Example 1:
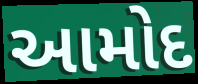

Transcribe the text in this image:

આમોદ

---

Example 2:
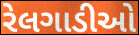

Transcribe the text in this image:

રેલગાડીઓ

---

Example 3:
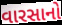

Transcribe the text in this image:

વારસાનો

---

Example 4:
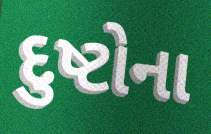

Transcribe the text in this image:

દુષ્ટોના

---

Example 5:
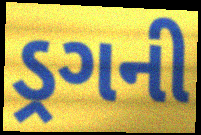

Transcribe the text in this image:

ડ્રગની